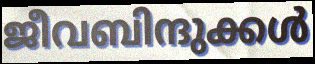
ജീവബിന്ദുക്കൾ